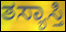
ತಸ್ಯಾಸ್ತಿ